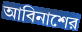
আবিনাশের